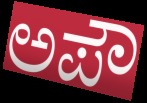
ಅಪೌ